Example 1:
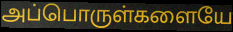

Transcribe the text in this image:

அப்பொருள்களையே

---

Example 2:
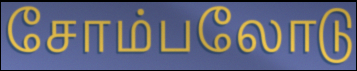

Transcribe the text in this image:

சோம்பலோடு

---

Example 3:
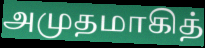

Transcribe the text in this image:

அமுதமாகித்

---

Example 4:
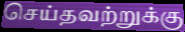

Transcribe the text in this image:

செய்தவற்றுக்கு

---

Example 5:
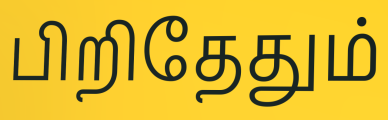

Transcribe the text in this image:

பிறிதேதும்